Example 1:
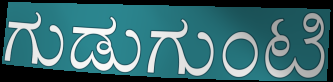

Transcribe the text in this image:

ಗುಡುಗುಂಟಿ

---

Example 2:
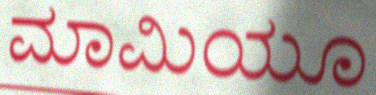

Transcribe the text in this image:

ಮಾಮಿಯೂ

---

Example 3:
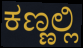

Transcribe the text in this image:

ಕಣ್ಣಲ್ಲಿ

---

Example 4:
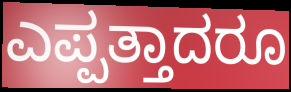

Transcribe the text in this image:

ಎಪ್ಪತ್ತಾದರೂ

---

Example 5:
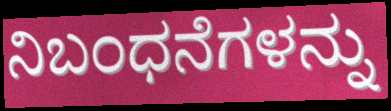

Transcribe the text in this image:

ನಿಬಂಧನೆಗಳನ್ನು